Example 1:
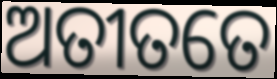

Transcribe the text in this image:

ଅତୀତତେ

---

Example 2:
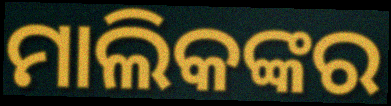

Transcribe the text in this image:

ମାଲିକଙ୍କର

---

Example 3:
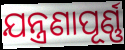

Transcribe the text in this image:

ଯନ୍ତ୍ରଣାପୂର୍ଣ୍ଣ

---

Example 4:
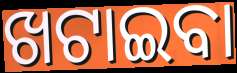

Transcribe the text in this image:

ଖଟାଇବା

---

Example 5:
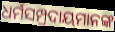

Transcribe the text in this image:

ଧର୍ମସମ୍ପ୍ରଦାୟମାନଙ୍କ